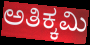
ಅತಿಕ್ಕಮಿ